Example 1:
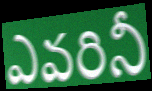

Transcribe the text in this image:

ఎవరినీ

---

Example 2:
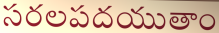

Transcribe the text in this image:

సరలపదయుతాం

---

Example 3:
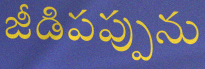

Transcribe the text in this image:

జీడిపప్పును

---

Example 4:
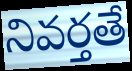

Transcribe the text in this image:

నివర్తతే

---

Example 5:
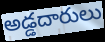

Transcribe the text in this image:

అడ్డదారులు